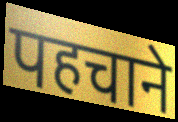
पहचाने